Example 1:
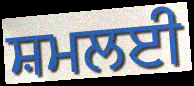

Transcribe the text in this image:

ਸ਼ਮਲਈ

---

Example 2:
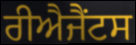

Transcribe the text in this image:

ਰੀਐਜੈਂਟਸ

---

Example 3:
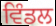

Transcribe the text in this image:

ਵਿੰਡਲ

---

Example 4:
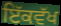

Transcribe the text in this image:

ਇੱਕਵੱਖ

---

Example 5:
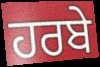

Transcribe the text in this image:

ਹਰਬੇ